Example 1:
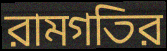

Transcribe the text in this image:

রামগতির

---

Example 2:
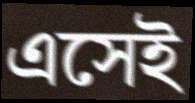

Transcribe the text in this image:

এসেই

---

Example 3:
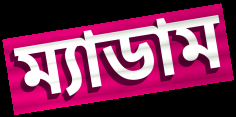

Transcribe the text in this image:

ম্যাডাম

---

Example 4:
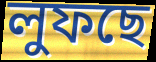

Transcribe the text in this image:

লুফছে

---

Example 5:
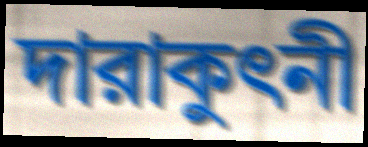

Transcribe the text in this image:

দারাকুৎনী